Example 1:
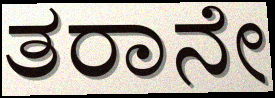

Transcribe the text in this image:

ತರಾನೇ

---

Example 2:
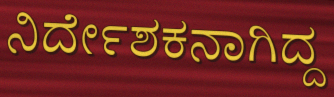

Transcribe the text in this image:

ನಿರ್ದೇಶಕನಾಗಿದ್ದ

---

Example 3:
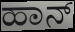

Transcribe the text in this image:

ಹಾನ್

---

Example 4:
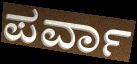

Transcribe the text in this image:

ಪರ್ವಾ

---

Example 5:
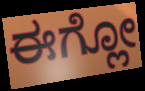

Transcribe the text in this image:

ಈಗ್ಲೋ